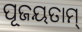
ପୂଜୟତାମ୍